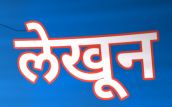
लेखून